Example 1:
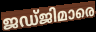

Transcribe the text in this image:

ജഡ്ജിമാരെ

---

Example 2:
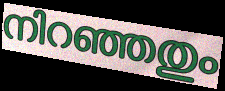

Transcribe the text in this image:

നിറഞ്ഞതും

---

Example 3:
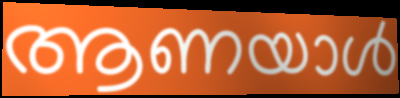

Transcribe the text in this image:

ആണയാൾ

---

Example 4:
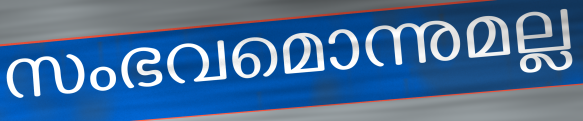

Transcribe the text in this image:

സംഭവമൊന്നുമല്ല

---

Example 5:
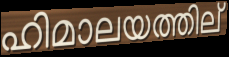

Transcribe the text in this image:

ഹിമാലയത്തില്